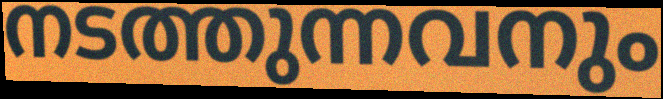
നടത്തുന്നവനും